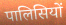
पालिसियों